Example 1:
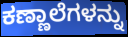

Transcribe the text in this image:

ಕಣ್ಣಾಲೆಗಳನ್ನು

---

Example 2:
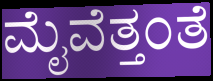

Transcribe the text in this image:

ಮೈವೆತ್ತಂತೆ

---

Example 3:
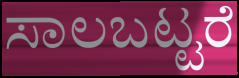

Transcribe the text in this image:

ಸಾಲಬಟ್ಟರೆ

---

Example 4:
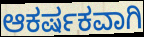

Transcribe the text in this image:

ಆಕರ್ಷಕವಾಗಿ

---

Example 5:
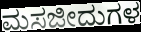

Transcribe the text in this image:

ಮಸಜೀದುಗಳ